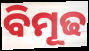
ବିମୂଢ